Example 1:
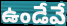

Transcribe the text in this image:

ఉండేవే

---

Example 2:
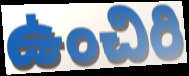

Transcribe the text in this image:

ఉంచిరి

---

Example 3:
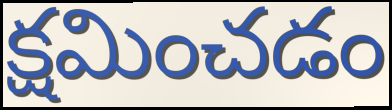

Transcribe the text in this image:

క్షమించడం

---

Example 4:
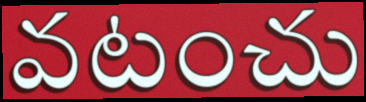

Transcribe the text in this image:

వటంచు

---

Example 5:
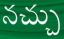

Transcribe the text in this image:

నచ్చు